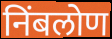
निंबलोण